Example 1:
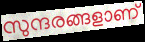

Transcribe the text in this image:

സുന്ദരങ്ങളാണ്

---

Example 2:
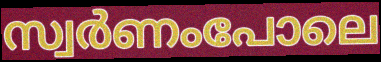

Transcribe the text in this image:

സ്വർണംപോലെ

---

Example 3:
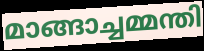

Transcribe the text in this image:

മാങ്ങാച്ചമ്മന്തി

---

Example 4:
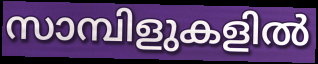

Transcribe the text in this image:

സാമ്പിളുകളിൽ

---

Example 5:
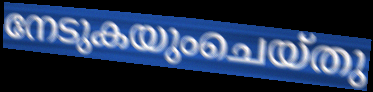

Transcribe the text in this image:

നേടുകയുംചെയ്തു